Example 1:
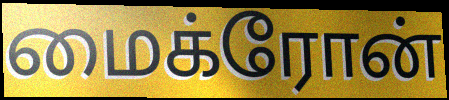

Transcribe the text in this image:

மைக்ரோன்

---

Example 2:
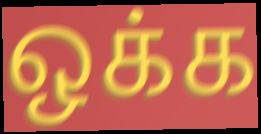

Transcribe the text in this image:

ஒக்க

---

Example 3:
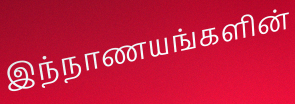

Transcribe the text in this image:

இந்நாணயங்களின்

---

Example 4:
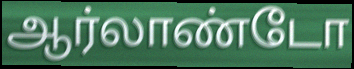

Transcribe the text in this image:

ஆர்லாண்டோ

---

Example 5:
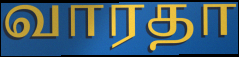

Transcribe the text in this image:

வாரதா